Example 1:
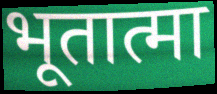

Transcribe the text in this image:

भूतात्मा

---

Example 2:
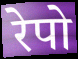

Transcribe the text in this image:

रेपो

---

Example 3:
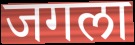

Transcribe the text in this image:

जगला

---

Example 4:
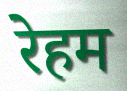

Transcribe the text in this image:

रेहम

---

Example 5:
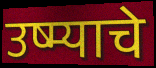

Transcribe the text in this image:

उष्म्याचे